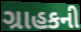
ગ્રાહકની